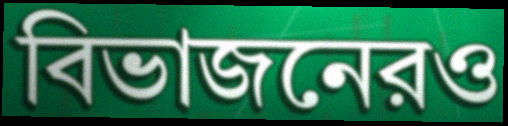
বিভাজনেরও